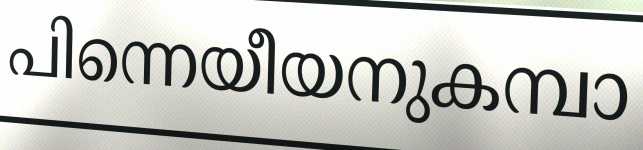
പിന്നെയീയനുകമ്പാ